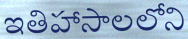
ఇతిహాసాలలోని